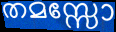
തമസ്സോ